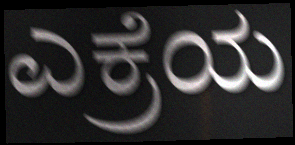
ಎಕ್ರೆಯ